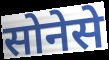
सोनेसे